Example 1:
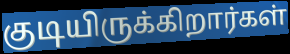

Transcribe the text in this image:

குடியிருக்கிறார்கள்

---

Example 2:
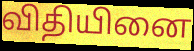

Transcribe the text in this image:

விதியினை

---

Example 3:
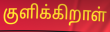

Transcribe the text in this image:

குளிக்கிறாள்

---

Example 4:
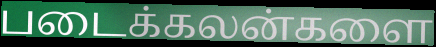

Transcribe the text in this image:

படைக்கலன்களை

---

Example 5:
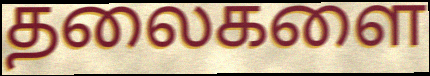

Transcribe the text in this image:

தலைகளை